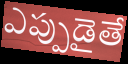
ఎప్పుడైతే